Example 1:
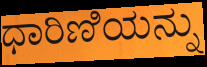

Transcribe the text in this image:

ಧಾರಿಣಿಯನ್ನು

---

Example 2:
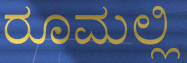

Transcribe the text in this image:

ರೂಮಲ್ಲಿ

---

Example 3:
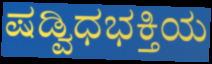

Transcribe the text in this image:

ಷಡ್ವಿಧಭಕ್ತಿಯ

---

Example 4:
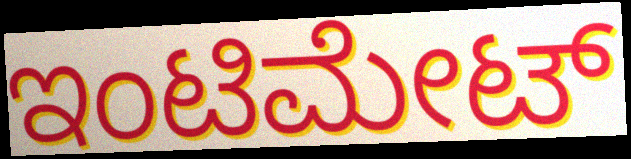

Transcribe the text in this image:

ಇಂಟಿಮೇಟ್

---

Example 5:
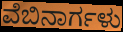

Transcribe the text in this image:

ವೆಬಿನಾರ್ಗಳು